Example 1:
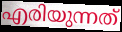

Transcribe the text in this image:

എരിയുന്നത്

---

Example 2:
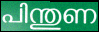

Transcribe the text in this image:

പിന്തുണ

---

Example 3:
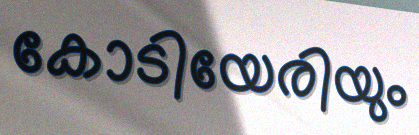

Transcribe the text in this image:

കോടിയേരിയും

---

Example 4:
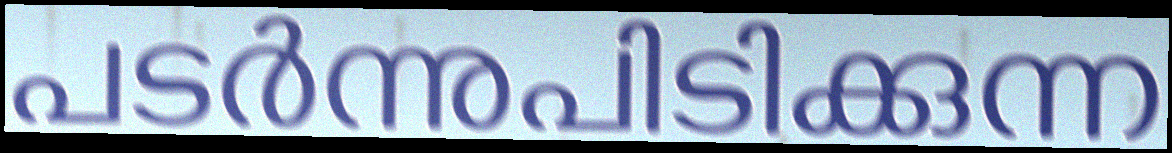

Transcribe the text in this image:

പടർന്നുപിടിക്കുന്ന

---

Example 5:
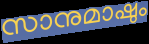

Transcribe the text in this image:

സാനുമാഷും